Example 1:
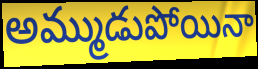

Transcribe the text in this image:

అమ్ముడుపోయినా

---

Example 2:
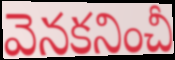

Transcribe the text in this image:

వెనకనించీ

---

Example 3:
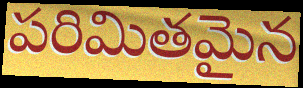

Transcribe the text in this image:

పరిమితమైన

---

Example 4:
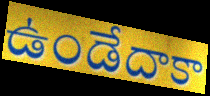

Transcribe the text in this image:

ఉండేదాకా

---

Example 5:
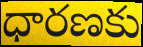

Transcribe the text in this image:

ధారణకు